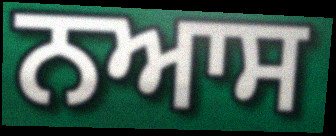
ਨਆਸ